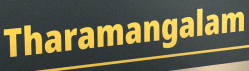
Tharamangalam